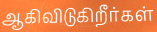
ஆகிவிடுகிறீர்கள்